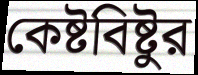
কেষ্টবিষ্টুর